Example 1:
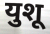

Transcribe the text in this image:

युशू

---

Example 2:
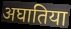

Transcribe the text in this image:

अघातिया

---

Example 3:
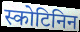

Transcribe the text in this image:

स्कोटिनिन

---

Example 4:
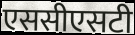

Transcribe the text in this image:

एससीएसटी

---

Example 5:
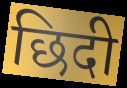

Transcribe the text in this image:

छिदी